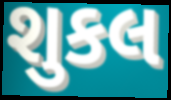
શુકલ